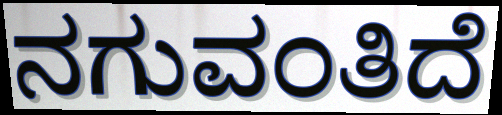
ನಗುವಂತಿದೆ